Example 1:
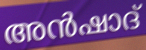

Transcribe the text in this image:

അൻഷാദ്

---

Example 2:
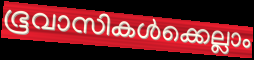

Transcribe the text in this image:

ഭൂവാസികൾക്കെല്ലാം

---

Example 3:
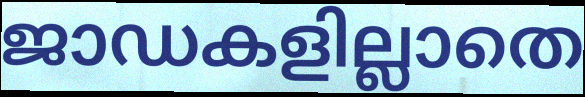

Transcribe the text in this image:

ജാഡകളില്ലാതെ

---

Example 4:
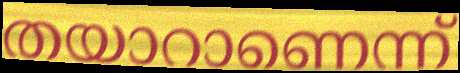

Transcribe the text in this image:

തയാറാണെന്ന്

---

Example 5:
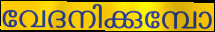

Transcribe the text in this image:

വേദനിക്കുമ്പോ